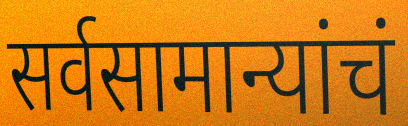
सर्वसामान्यांचं